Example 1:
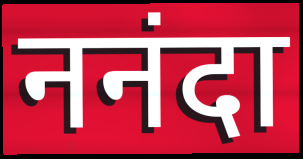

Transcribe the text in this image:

ननंदा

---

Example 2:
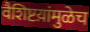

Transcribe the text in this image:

वैशिष्टय़ांमुळेच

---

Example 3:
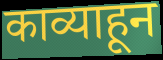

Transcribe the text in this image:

काव्याहून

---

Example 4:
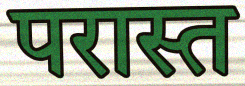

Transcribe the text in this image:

परास्त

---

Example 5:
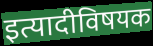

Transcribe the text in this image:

इत्यादीविषयक